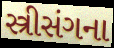
સ્ત્રીસંગના